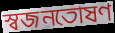
স্বজনতোষণ